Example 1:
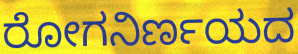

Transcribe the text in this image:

ರೋಗನಿರ್ಣಯದ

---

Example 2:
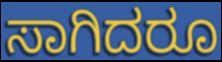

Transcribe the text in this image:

ಸಾಗಿದರೂ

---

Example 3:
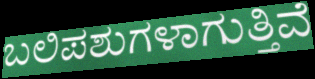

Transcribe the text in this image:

ಬಲಿಪಶುಗಳಾಗುತ್ತಿವೆ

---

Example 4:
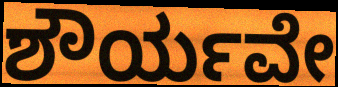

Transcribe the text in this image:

ಶೌರ್ಯವೇ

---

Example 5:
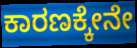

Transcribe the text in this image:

ಕಾರಣಕ್ಕೇನೇ